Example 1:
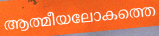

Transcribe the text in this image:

ആത്മീയലോകത്തെ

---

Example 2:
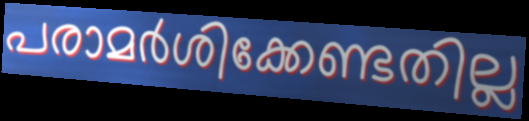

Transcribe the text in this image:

പരാമർശിക്കേണ്ടതില്ല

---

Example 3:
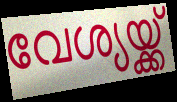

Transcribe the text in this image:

വേശ്യയ്ക്ക്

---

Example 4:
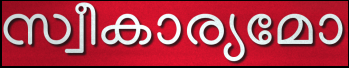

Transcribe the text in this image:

സ്വീകാര്യമോ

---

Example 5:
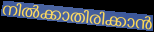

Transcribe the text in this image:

നിൽക്കാതിരിക്കാൻ